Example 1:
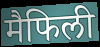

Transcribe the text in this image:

मैफिली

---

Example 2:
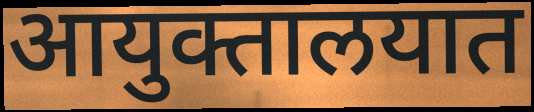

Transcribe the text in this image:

आयुक्तालयात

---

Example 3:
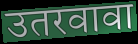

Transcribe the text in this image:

उतरवावा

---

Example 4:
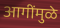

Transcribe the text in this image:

आगींमुळे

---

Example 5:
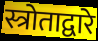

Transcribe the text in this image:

स्त्रोताद्वारे